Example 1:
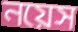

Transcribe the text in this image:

নয়েস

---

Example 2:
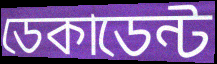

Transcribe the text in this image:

ডেকাডেন্ট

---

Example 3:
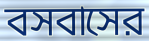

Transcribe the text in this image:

বসবাসের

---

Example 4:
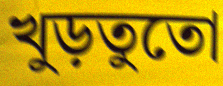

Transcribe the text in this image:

খুড়তুতো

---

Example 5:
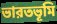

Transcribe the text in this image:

ভারতভূমি